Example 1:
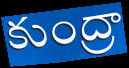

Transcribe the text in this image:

కుంద్రా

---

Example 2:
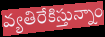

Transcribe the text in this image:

వ్యతిరేకిస్తున్నాం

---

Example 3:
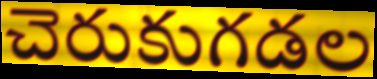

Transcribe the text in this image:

చెరుకుగడల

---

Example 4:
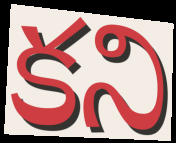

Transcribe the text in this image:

కని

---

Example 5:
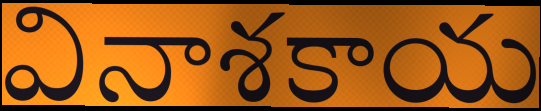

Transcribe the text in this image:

వినాశకాయ